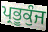
ਪ੍ਰਭੂਕੁੰਜ